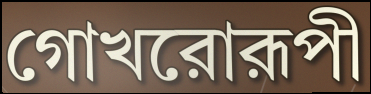
গোখরোরূপী